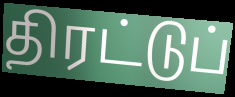
திரட்டுப்